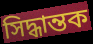
সিদ্ধান্তক